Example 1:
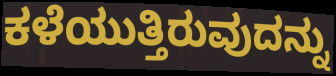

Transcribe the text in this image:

ಕಳೆಯುತ್ತಿರುವುದನ್ನು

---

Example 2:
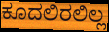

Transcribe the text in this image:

ಕೂದಲಿರಲಿಲ್ಲ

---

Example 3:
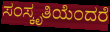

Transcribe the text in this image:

ಸಂಸ್ಕೃತಿಯೆಂದರೆ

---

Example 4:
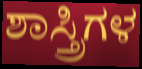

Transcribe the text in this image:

ಶಾಸ್ತ್ರಿಗಳ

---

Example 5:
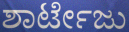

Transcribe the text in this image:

ಶಾರ್ಟೇಜು